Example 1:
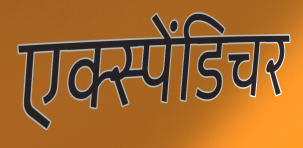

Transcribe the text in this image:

एक्स्पेंडिचर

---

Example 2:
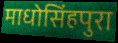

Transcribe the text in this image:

माधोसिंहपुरा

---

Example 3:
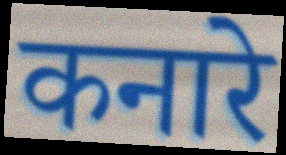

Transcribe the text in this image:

कनारे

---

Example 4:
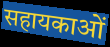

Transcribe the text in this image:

सहायकाओं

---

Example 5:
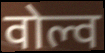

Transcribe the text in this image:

वोल्व